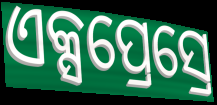
ଏକ୍ସପ୍ରେସ୍ରେ